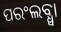
ପରଂଲବ୍ଧ୍ଵା